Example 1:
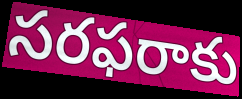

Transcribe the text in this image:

సరఫరాకు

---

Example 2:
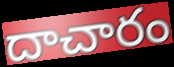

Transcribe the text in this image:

దాచారం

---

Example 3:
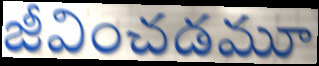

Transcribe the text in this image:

జీవించడమూ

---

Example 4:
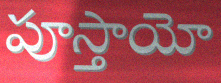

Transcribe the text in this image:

పూస్తాయో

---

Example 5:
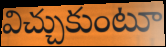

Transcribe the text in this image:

విచ్చుకుంటూ